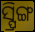
ସ୍ପ୍ରିଙ୍ଗ